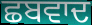
ਛਬਵਾਦ